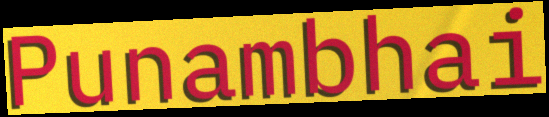
Punambhai